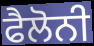
ਫੈਲੋਨੀ